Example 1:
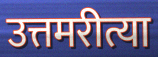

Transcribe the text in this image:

उत्तमरीत्या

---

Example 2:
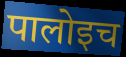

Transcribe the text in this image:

पालोइच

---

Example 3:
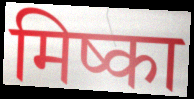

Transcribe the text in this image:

मिष्का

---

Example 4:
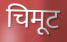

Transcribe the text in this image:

चिमूट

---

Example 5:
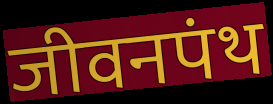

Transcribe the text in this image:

जीवनपंथ